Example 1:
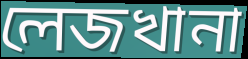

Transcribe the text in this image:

লেজখানা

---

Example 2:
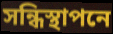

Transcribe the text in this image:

সন্ধিস্থাপনে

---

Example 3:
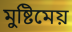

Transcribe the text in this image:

মুষ্টিমেয়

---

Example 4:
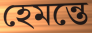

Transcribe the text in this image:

হেমন্তে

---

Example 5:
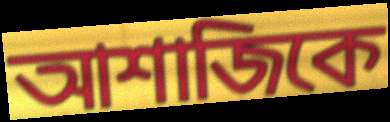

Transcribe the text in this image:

আশাজিকে